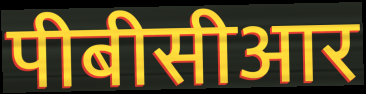
पीबीसीआर